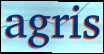
agris